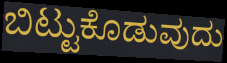
ಬಿಟ್ಟುಕೊಡುವುದು